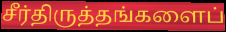
சீர்திருத்தங்களைப்